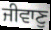
ਜੀਵਾਣੁ